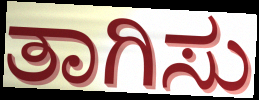
ತಾಗಿಸು